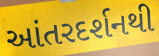
આંતરદર્શનથી